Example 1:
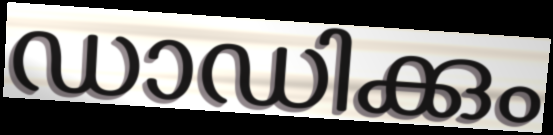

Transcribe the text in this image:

ഡാഡിക്കും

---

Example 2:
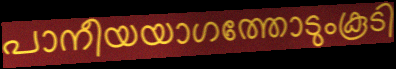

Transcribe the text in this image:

പാനീയയാഗത്തോടുംകൂടി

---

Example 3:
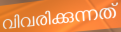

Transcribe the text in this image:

വിവരിക്കുന്നത്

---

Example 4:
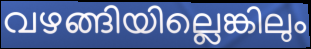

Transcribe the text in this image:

വഴങ്ങിയില്ലെങ്കിലും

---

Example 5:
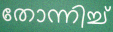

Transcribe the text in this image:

തോന്നിച്ച്